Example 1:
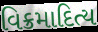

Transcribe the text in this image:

વિક્રમાદિત્‍ય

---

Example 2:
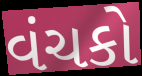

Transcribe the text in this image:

વંચકો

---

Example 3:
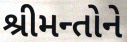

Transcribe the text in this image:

શ્રીમન્તોને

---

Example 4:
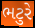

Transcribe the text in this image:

ભટુરે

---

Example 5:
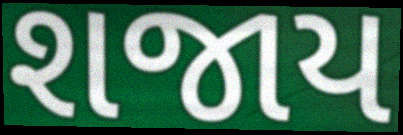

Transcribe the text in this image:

શજાય